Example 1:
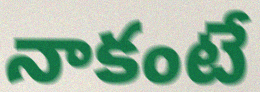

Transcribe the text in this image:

నాకంటే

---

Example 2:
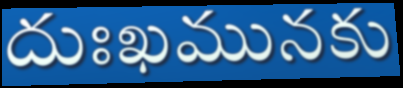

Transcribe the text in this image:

దుఃఖమునకు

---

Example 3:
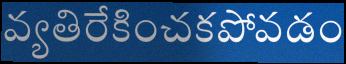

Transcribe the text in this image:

వ్యతిరేకించకపోవడం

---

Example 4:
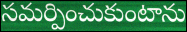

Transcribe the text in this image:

సమర్పించుకుంటాను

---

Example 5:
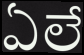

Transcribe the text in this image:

ఏలే